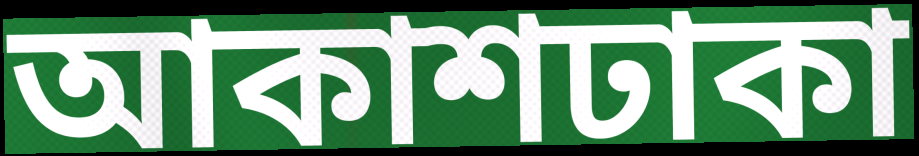
আকাশঢাকা